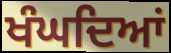
ਖੰਘਦਿਆਂ